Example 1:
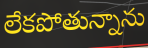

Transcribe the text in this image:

లేకపోతున్నాను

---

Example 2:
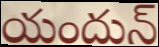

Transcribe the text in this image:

యందున్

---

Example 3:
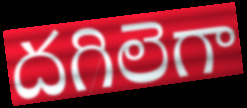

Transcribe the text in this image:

దగిలెగా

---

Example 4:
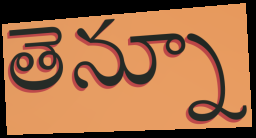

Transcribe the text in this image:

తెన్నూ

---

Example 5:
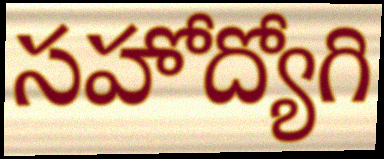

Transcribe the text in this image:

సహోద్యోగి